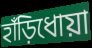
হাঁড়িধোয়া